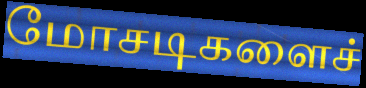
மோசடிகளைச்